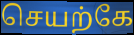
செயற்கே